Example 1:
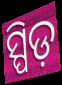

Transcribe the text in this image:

ସ୍ପିଡ଼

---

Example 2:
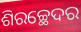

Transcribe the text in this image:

ଶିରଚ୍ଛେଦର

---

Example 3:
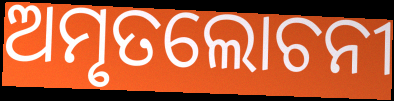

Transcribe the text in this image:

ଅମୃତଲୋଚନୀ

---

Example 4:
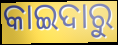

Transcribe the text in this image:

କାଇଦାରୁ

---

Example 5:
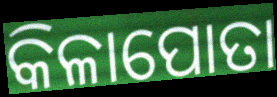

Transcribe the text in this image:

କିଳାପୋତା